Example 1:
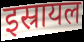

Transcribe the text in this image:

इस्रायल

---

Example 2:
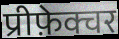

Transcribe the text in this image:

प्रीफ़ेक्चर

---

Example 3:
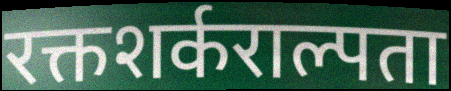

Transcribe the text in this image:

रक्तशर्कराल्पता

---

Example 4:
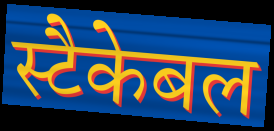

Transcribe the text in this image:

स्टैकेबल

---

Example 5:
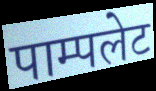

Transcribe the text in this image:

पाम्पलेट